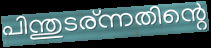
പിന്തുടര്ന്നതിന്റെ